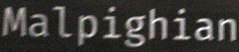
Malpighian